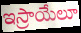
ఇస్రాయేలూ